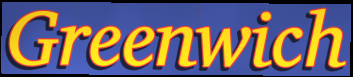
Greenwich